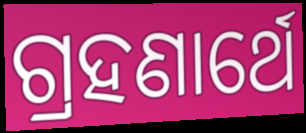
ଗ୍ରହଣାର୍ଥେ